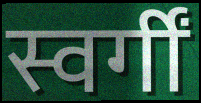
स्वर्गीं